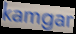
kamgar